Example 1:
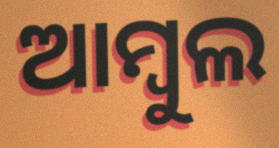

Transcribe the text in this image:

ଆମ୍ବୁଲ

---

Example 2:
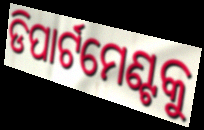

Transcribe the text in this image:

ଡିପାର୍ଟମେଣ୍ଟକୁ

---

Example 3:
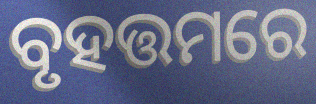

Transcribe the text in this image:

ବୃହତ୍ତମରେ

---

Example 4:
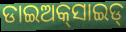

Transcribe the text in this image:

ଡାଇଅକ୍‌ସାଇଡ୍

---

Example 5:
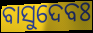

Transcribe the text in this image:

ବାସୁଦେବଃ